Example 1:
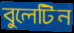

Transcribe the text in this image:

বুলেটিন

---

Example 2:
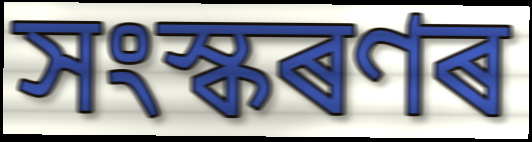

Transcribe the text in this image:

সংস্কৰণৰ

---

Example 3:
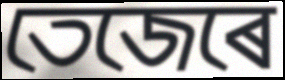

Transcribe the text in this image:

তেজেৰে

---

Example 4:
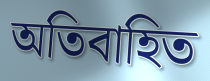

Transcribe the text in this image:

অতিবাহিত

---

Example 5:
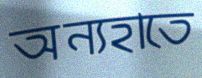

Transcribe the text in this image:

অন্যহাতে